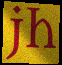
jh